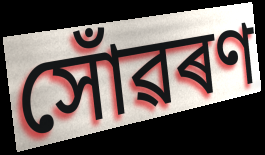
সোঁৱৰণ